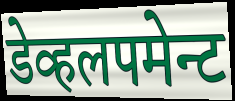
डेव्हलपमेन्ट